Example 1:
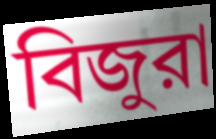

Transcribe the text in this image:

বিজুরা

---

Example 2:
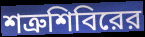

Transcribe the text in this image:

শত্রুশিবিরের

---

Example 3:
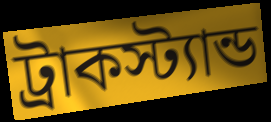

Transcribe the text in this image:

ট্রাকস্ট্যান্ড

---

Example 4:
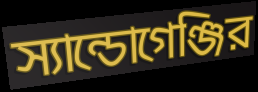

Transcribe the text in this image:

স্যান্ডোগেঞ্জির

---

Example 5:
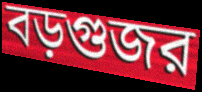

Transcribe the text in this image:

বড়গুজর